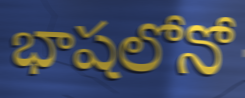
భాషలోనో